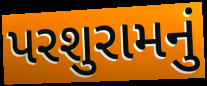
પરશુરામનું